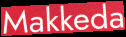
Makkeda